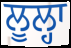
ਲੂਲ੍ਹਾ